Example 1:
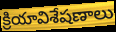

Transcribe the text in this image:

క్రియావిశేషణాలు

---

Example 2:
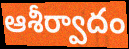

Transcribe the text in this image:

ఆశీర్వాదం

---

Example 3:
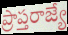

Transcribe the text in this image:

ప్రాప్తరాజ్యే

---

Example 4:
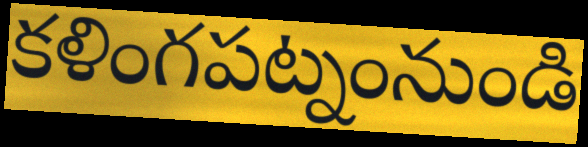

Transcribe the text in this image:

కళింగపట్నంనుండి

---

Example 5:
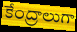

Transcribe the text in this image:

కేంద్రాలుగా